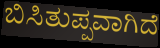
ಬಿಸಿತುಪ್ಪವಾಗಿದೆ